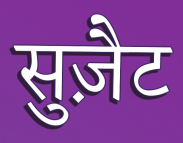
सुज़ैट